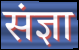
संज्ञा